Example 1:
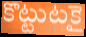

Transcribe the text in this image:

కొట్టుటకై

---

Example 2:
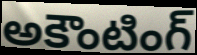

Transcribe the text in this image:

అకౌంటింగ్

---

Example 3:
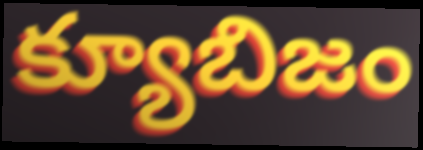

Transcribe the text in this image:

క్యూబిజం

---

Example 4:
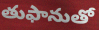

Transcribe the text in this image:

తుఫానుతో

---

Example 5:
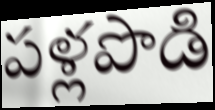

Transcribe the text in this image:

పళ్లపొడి